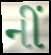
નીં